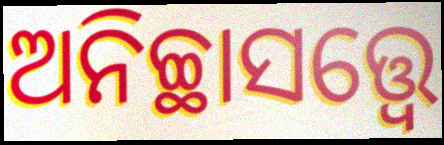
ଅନିଚ୍ଛାସତ୍ତ୍ବେ